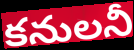
కనులనీ